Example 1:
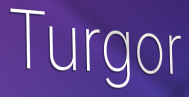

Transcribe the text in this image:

Turgor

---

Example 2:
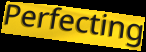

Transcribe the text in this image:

Perfecting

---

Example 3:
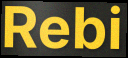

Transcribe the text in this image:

Rebi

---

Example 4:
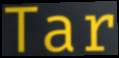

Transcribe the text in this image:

Tar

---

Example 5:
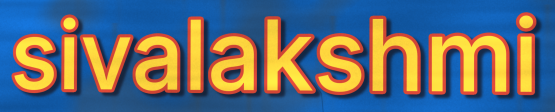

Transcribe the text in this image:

sivalakshmi